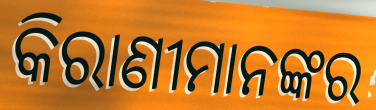
କିରାଣୀମାନଙ୍କର